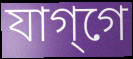
যাগ্‌গে